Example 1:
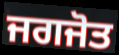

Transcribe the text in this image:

ਜਗਜੋਤ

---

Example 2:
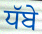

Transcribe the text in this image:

ਧੱਬੇ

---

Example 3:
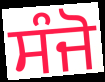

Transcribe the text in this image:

ਸੰਜੋ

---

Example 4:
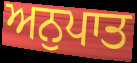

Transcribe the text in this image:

ਅਨੁਪਾਤ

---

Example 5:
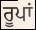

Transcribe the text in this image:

ਰੂਪਾਂ